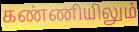
கண்ணியிலும்